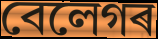
বেলেগৰ